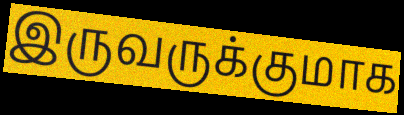
இருவருக்குமாக